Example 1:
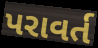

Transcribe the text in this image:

પરાવર્ત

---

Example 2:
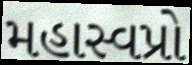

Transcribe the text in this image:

મહાસ્વપ્રો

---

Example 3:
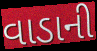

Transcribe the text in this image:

વાડાની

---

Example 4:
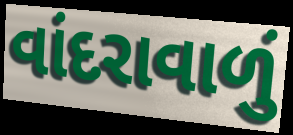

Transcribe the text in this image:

વાંદરાવાળું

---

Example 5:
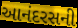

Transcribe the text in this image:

આનંદરસની